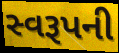
સ્વરૂપની